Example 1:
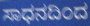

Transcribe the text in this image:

ಸಾಧನದಿಂದ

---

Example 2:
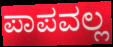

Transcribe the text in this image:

ಪಾಪವಲ್ಲ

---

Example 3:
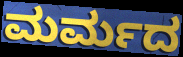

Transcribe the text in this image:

ಮರ್ಮದ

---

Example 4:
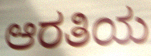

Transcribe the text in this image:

ಆರತಿಯ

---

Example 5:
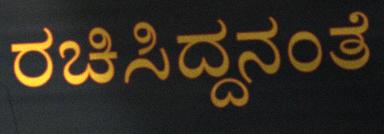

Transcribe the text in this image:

ರಚಿಸಿದ್ದನಂತೆ